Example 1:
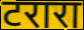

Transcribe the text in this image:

टरारा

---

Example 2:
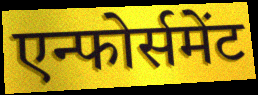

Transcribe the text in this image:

एन्फोर्समेंट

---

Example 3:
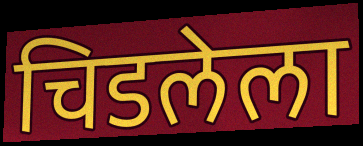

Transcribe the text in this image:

चिडलेला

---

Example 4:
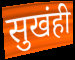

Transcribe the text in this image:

सुखंही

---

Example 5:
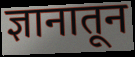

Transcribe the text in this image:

ज्ञानातून